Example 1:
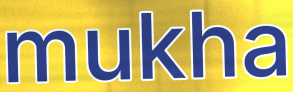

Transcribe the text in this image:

mukha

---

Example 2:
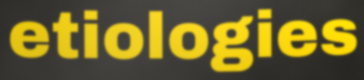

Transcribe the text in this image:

etiologies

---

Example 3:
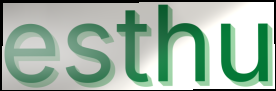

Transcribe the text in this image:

esthu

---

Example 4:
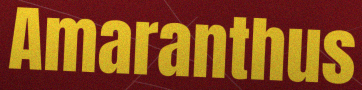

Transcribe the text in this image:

Amaranthus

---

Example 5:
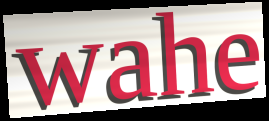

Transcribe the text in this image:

wahe